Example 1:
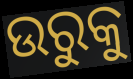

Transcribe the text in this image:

ଉରୁକୁ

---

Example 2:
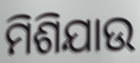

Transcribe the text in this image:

ମିଶିଯାଉ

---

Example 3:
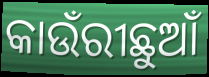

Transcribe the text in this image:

କାଉଁରୀଛୁଆଁ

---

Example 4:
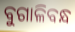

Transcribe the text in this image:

ବୁଗାଳିବନ୍ଧ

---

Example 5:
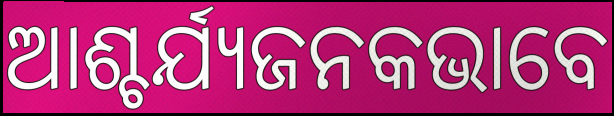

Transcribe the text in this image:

ଆଶ୍ଚର୍ଯ୍ୟଜନକଭାବେ